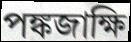
পঙ্কজাক্ষি